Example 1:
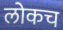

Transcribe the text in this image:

लोकच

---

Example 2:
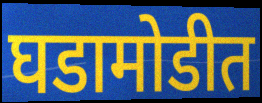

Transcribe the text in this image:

घडामोडीत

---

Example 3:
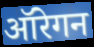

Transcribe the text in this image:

ऑरेगन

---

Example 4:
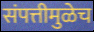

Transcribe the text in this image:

संपत्तीमुळेच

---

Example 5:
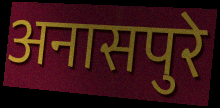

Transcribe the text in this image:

अनासपुरे